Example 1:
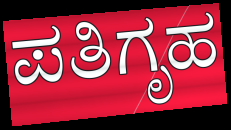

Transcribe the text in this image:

ಪತಿಗೃಹ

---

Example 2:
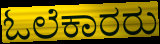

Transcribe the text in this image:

ಓಲೆಕಾರರು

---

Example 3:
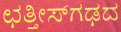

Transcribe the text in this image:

ಛತ್ತೀಸ್‌ಗಢದ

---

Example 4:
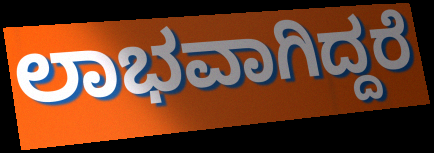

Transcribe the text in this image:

ಲಾಭವಾಗಿದ್ದರೆ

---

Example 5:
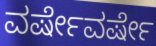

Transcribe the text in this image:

ವರ್ಷೇವರ್ಷೇ